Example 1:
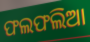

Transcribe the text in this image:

ଫଲଫଲିଆ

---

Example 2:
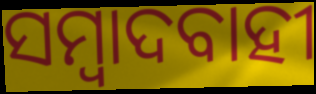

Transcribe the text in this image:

ସମ୍ବାଦବାହୀ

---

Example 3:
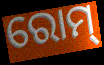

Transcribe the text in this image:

ରୋମ୍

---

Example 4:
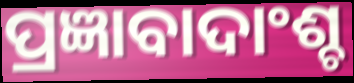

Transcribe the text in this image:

ପ୍ରଜ୍ଞାବାଦାଂଶ୍ଚ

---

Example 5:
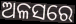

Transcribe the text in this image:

ଅଳସରେ